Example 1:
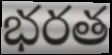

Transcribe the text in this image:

భరత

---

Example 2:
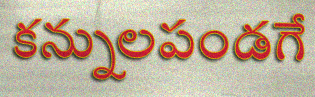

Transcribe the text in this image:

కన్నులపండగే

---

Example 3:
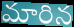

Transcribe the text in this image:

మారిన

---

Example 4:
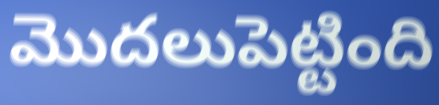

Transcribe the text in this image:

మొదలుపెట్టింది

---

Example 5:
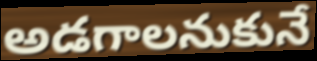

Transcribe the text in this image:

అడగాలనుకునే